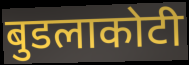
बुडलाकोटी